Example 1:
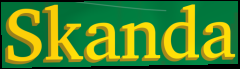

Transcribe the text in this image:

Skanda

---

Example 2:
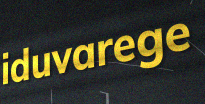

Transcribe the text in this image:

iduvarege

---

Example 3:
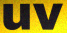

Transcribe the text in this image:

uv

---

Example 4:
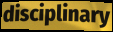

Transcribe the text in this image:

disciplinary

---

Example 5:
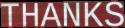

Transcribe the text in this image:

THANKS